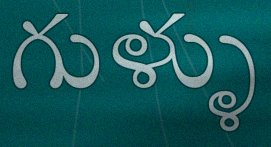
గుళ్ళు